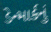
ડેન્માર્કનું